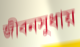
জীবনসুধায়